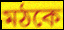
মঠকে